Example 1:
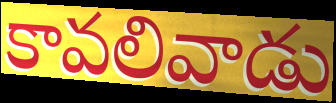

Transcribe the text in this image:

కావలివాడు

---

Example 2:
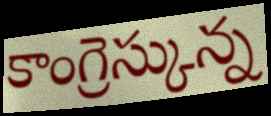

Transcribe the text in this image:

కాంగ్రెస్కున్న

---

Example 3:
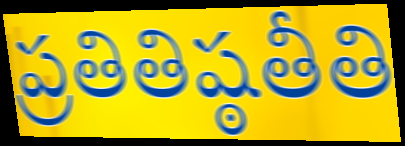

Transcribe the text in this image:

ప్రతితిష్ఠతీతి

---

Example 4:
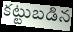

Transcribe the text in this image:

కట్టుబడిన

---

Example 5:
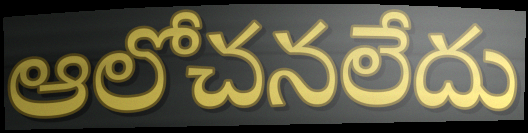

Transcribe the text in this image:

ఆలోచనలేదు